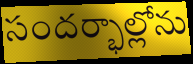
సందర్భాల్లోను